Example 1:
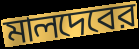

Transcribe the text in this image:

মালদেবের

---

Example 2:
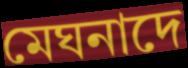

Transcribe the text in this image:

মেঘনাদে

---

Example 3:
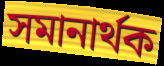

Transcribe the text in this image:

সমানার্থক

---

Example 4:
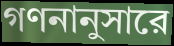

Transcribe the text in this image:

গণনানুসারে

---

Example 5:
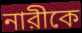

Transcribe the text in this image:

নারীকে